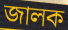
জালক